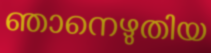
ഞാനെഴുതിയ